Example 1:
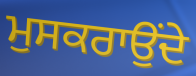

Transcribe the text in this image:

ਮੁਸਕਰਾਉਂਦੇ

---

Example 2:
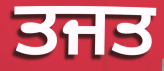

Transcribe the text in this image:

ਤਜਤ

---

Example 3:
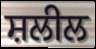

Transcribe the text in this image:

ਸ਼ਲੀਲ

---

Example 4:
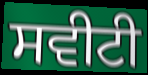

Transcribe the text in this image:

ਸਵੀਟੀ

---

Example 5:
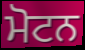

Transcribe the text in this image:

ਮੋਟਨ